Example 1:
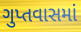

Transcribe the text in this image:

ગુપ્તવાસમાં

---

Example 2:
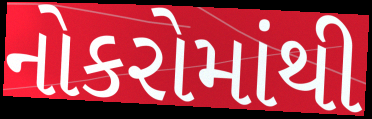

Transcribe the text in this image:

નોકરોમાંથી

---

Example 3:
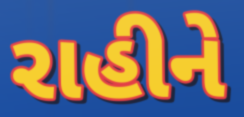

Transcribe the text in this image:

રાહીને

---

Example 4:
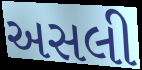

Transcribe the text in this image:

અસલી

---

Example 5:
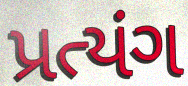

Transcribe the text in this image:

પ્રત્યંગ